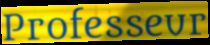
Professeur